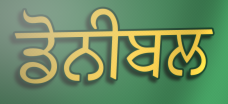
ਡੋਨੀਬਲ